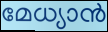
മേധ്യാൻ